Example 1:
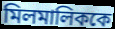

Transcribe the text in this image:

মিলমালিককে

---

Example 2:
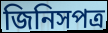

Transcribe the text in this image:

জিনিসপত্র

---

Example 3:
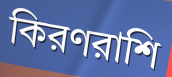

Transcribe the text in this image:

কিরণরাশি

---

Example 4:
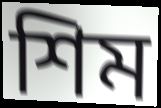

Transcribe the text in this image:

শিম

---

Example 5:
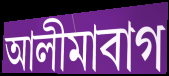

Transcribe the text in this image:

আলীমাবাগ